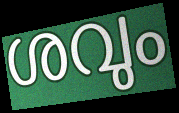
ശവും